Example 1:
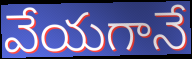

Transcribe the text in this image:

వేయగానే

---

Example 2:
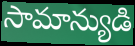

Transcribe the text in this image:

సామాన్యుడి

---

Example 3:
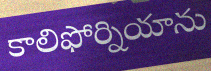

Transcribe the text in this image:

కాలిఫోర్నియాను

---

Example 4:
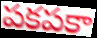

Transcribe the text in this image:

పకపకా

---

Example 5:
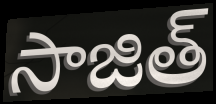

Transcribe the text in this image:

సాజిత్